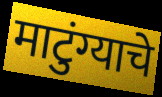
माटुंग्याचे